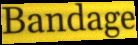
Bandage